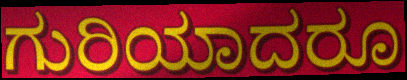
ಗುರಿಯಾದರೂ